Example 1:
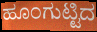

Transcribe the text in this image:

ಹೂಂಗುಟ್ಟಿದ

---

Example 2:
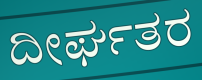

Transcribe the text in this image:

ದೀರ್ಘತರ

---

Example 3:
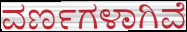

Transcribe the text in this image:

ವರ್ಣಗಳಾಗಿವೆ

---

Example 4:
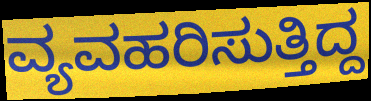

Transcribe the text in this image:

ವ್ಯವಹರಿಸುತ್ತಿದ್ದ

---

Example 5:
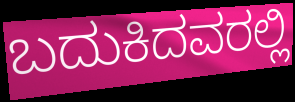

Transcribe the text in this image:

ಬದುಕಿದವರಲ್ಲಿ